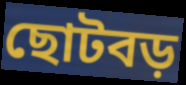
ছোটবড়